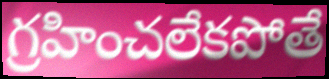
గ్రహించలేకపోతే